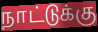
நாட்டுக்கு